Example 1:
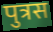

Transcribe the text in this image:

पुत्रस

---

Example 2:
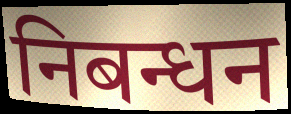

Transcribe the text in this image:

निबन्धन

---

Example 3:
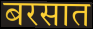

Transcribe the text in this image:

बरसात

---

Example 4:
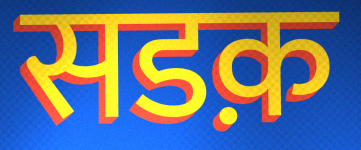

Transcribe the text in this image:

सडक़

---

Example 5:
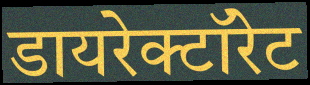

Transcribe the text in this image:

डायरेक्टॉरेट